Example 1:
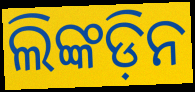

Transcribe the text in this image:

ଲିଙ୍କଡ଼ିନ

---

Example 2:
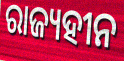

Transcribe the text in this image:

ରାଜ୍ୟହୀନ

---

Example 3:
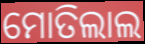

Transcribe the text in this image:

ମୋତିଲାଲ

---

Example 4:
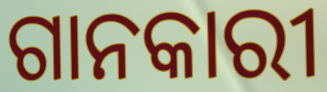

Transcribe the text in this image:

ଗାନକାରୀ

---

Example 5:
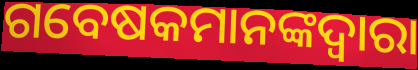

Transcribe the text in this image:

ଗବେଷକମାନଙ୍କଦ୍ୱାରା